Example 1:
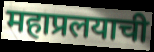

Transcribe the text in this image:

महाप्रलयाची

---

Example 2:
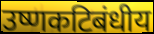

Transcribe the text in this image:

उष्णकटिबंधीय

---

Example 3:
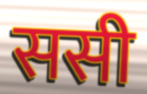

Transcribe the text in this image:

ससी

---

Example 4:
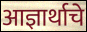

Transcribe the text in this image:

आज्ञार्थाचे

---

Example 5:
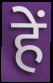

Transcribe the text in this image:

हें